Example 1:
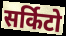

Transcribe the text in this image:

सर्किटो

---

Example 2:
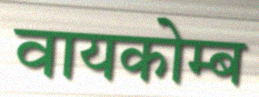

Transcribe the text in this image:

वायकोम्ब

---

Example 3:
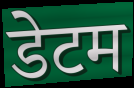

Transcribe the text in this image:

डेटम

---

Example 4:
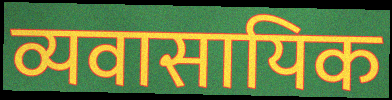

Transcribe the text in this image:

व्यवासायिक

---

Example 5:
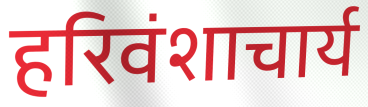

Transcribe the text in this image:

हरिवंशाचार्य